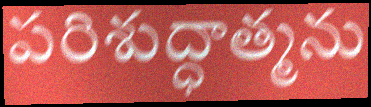
పరిశుద్ధాత్మను